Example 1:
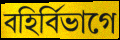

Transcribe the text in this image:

বহির্বিভাগে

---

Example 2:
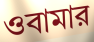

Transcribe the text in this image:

ওবামার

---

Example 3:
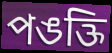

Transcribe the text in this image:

পঙক্তি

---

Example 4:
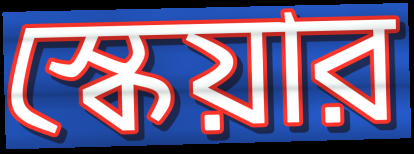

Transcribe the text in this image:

স্কেয়ার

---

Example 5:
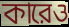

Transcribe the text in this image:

কারেও